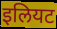
इलियट